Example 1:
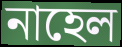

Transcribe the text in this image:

নাহেল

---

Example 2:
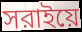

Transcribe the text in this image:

সরাইয়ে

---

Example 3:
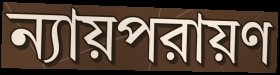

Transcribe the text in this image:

ন্যায়পরায়ণ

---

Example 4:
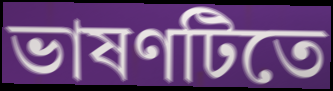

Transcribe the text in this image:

ভাষণটিতে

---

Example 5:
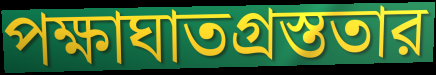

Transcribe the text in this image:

পক্ষাঘাতগ্রস্ততার